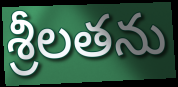
శ్రీలతను